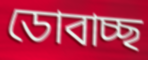
ডোবাচ্ছ